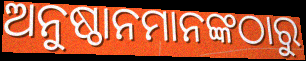
ଅନୁଷ୍ଠାନମାନଙ୍କଠାରୁ